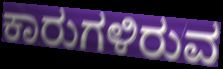
ಕಾರುಗಳಿರುವ